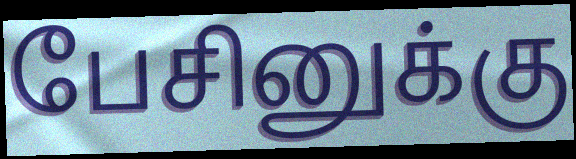
பேசினுக்கு